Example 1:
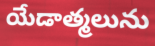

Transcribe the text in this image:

యేడాత్మలును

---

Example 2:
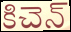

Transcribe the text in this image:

కిచెన్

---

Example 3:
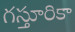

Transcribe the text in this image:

గస్తూరికా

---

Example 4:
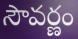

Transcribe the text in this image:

సౌవర్ణం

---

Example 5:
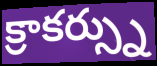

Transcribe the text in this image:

క్రాకర్స్ను